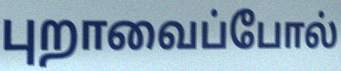
புறாவைப்போல்